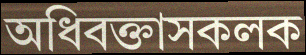
অধিবক্তাসকলক